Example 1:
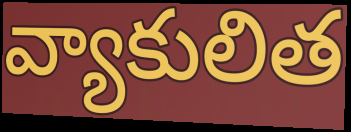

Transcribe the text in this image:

వ్యాకులిత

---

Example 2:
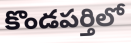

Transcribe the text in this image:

కొండపర్తిలో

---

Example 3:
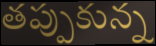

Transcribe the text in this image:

తప్పుకున్న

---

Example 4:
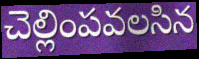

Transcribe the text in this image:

చెల్లింపవలసిన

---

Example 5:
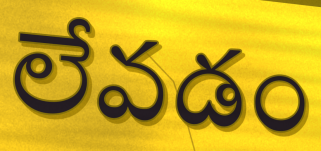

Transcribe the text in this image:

లేవడం